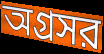
অগ্রসর